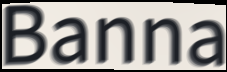
Banna